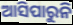
ଆସିପାରୁନି